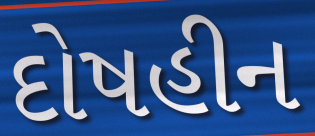
દોષહીન